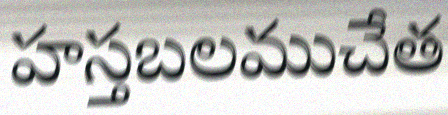
హస్తబలముచేత